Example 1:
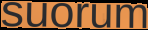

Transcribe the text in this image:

suorum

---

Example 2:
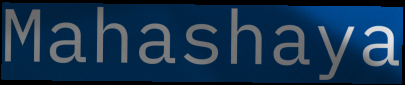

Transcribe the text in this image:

Mahashaya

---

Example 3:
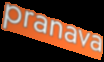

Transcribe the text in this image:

pranava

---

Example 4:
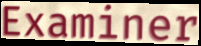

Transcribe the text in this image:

Examiner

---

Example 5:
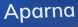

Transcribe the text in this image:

Aparna